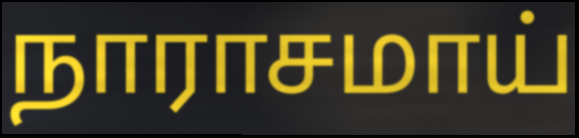
நாராசமாய்